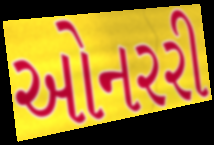
ઓનરરી